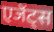
एजेंट्स